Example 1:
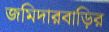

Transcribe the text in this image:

জমিদারবাড়ির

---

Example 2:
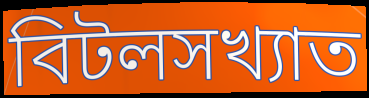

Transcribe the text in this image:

বিটলসখ্যাত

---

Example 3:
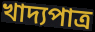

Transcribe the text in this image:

খাদ্যপাত্র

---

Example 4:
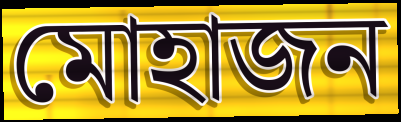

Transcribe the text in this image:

মোহাজন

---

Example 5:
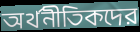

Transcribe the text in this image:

অর্থনীতিকদের